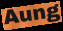
Aung